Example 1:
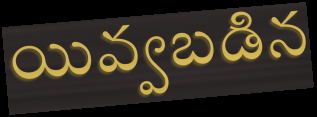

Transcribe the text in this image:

యివ్వబడిన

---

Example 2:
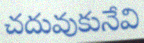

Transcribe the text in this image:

చదువుకునేవి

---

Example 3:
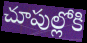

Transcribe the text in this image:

చూపుల్లోకి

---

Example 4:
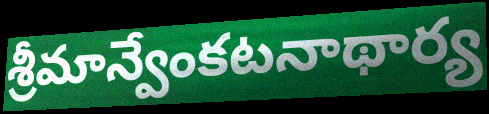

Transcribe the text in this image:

శ్రీమాన్వేంకటనాథార్య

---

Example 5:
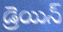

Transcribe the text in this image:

డ్రెయిన్